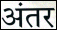
अंतर